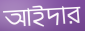
আইদার